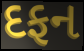
દફન